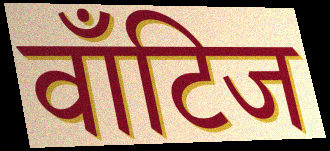
वाँटिज